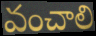
వంచాలి